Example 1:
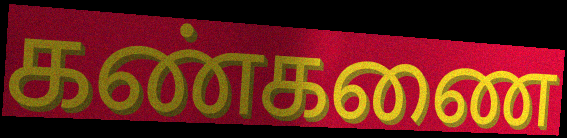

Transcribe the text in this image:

கண்கணை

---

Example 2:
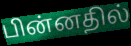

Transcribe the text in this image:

பின்னதில்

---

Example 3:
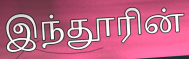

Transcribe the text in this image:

இந்தூரின்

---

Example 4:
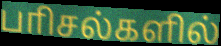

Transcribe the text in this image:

பரிசல்களில்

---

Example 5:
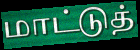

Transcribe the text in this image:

மாட்டுத்